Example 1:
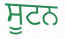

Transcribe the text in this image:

ਸੂਟਨ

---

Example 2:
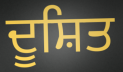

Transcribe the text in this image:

ਦੂਸ਼ਿਤ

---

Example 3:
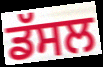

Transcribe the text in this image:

ਡੱਸਲ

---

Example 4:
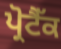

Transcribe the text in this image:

ਪ੍ਰੋਟੈੱਕ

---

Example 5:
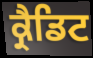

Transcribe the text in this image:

ਕ੍ਰੈਡਿਟ